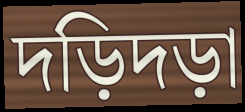
দড়িদড়া